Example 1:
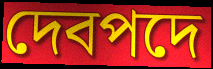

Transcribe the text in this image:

দেবপদে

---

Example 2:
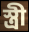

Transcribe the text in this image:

স্ত্রী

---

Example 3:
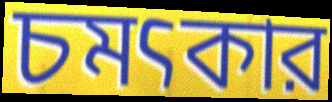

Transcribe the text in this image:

চমৎকার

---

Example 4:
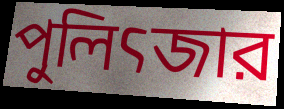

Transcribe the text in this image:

পুলিৎজার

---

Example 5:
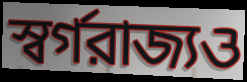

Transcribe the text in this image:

স্বর্গরাজ্যও